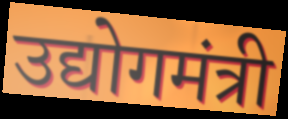
उद्योगमंत्री